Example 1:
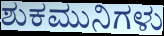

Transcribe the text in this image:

ಶುಕಮುನಿಗಳು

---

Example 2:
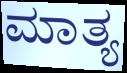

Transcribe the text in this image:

ಮಾತ್ಯ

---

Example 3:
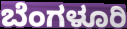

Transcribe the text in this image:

ಬೆಂಗಳೂರಿ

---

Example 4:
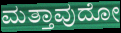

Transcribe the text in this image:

ಮತ್ತಾವುದೋ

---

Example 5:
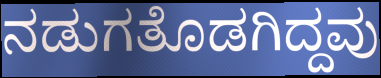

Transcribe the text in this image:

ನಡುಗತೊಡಗಿದ್ದವು